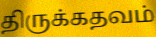
திருக்கதவம்